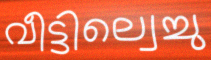
വീട്ടില്വെച്ചു